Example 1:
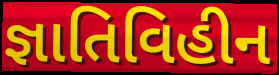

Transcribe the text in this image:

જ્ઞાતિવિહીન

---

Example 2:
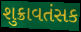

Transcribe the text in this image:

શુક્રાવતંસક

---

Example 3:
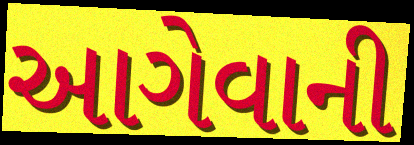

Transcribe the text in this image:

આગેવાની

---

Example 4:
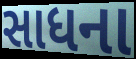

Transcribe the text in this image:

સાધના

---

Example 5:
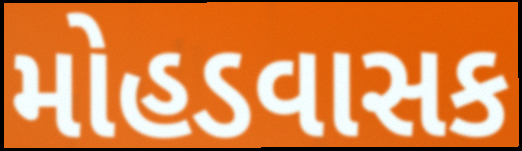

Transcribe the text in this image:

મોહડવાસક